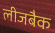
लीजबैक